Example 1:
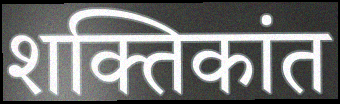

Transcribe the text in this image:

शक्तिकांत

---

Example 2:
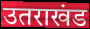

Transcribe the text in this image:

उतराखंड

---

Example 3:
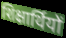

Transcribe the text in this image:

शिक्षार्थियों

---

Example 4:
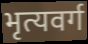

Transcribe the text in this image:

भृत्यवर्ग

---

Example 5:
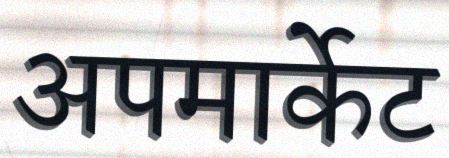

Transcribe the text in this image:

अपमार्केट